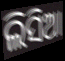
ଲିସିଆ